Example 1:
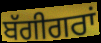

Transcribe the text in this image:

ਬੱਗੀਗਰਾਂ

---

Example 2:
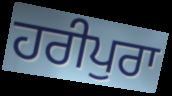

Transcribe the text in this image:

ਹਰੀਪੁਰਾ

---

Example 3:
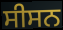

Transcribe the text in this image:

ਸੀਸਨ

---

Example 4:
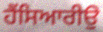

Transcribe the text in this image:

ਹੈਂਸਿਆਰੀਉ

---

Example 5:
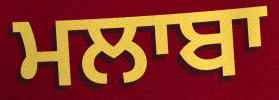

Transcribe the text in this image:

ਮਲਾਬਾ